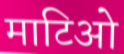
माटिओ